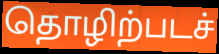
தொழிற்படச்